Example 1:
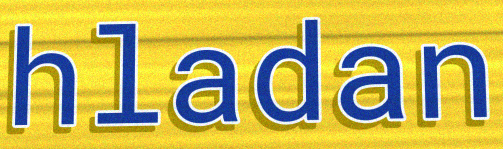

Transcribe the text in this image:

hladan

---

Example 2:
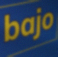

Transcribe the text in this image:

bajo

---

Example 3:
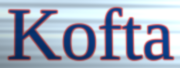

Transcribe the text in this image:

Kofta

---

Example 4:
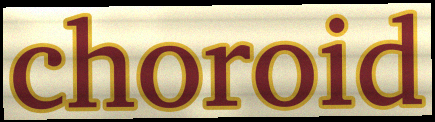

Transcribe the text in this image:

choroid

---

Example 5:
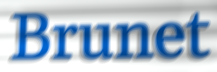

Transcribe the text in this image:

Brunet